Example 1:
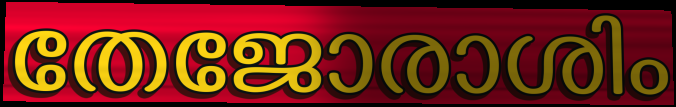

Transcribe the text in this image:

തേജോരാശിം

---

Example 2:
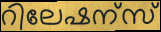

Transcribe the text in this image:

റിലേഷന്സ്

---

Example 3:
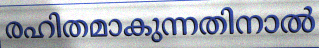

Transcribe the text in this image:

രഹിതമാകുന്നതിനാൽ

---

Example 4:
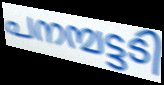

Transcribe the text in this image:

പനമ്പട്ടടി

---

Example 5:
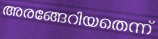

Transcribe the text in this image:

അരങ്ങേറിയതെന്ന്